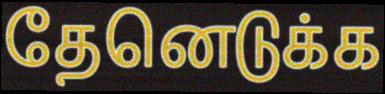
தேனெடுக்க